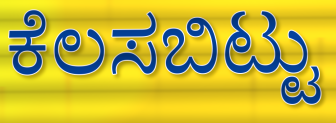
ಕೆಲಸಬಿಟ್ಟು